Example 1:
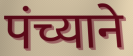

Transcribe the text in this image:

पंच्याने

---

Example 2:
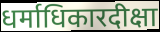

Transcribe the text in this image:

धर्माधिकारदीक्षा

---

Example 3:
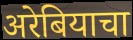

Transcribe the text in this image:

अरेबियाचा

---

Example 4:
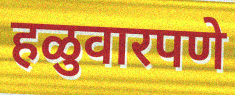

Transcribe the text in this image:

हळुवारपणे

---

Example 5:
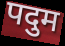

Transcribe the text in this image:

पदुम